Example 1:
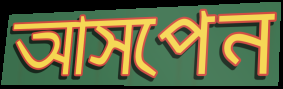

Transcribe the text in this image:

আসপেন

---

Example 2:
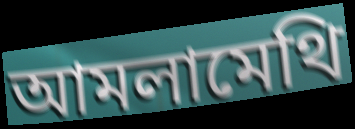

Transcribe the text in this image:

আমলামেথি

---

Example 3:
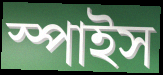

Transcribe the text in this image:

স্পাইস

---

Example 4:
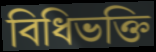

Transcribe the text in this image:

বিধিভক্তি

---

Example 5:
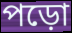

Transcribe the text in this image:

পড়ো